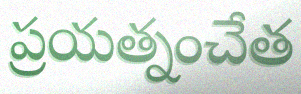
ప్రయత్నంచేత